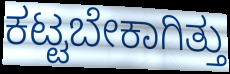
ಕಟ್ಟಬೇಕಾಗಿತ್ತು